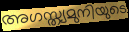
അഗസ്ത്യമുനിയുടെ